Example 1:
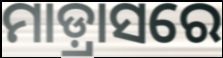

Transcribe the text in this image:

ମାଡ଼୍ରାସରେ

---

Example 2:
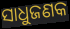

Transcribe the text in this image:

ସାଧୁଜଣକ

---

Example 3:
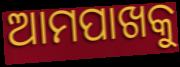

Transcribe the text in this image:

ଆମପାଖକୁ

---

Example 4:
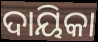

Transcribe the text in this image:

ଦାୟିକା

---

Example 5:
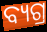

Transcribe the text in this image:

ବ୍ୟଗ୍ର